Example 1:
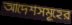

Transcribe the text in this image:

আদেশসমূহের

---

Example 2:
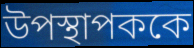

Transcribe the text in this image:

উপস্থাপককে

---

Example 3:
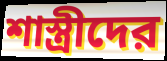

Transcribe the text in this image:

শাস্ত্রীদের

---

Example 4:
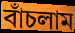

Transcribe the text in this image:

বাঁচলাম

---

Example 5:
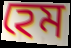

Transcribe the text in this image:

হেম